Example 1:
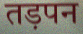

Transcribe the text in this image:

तड़पन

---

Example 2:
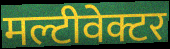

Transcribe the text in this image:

मल्टीवेक्टर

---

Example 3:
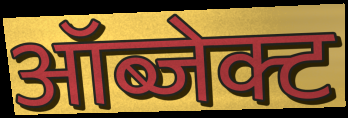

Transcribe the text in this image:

ऑब्जेक्ट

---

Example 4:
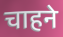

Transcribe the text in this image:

चाहने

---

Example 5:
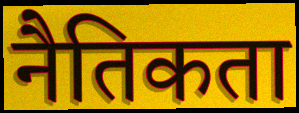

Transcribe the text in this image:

नैतिकता